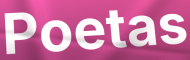
Poetas